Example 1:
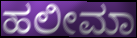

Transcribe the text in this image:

ಹಲೀಮಾ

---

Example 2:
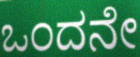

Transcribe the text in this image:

ಒಂದನೇ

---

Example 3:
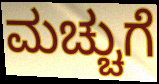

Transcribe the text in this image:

ಮಚ್ಚುಗೆ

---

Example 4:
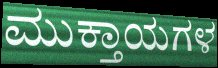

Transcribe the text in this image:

ಮುಕ್ತಾಯಗಳ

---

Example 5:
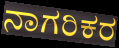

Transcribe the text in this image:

ನಾಗರಿಕರ